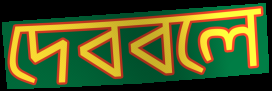
দেববলে